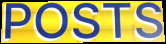
POSTS